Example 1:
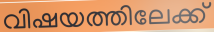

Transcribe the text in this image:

വിഷയത്തിലേക്ക്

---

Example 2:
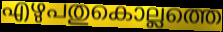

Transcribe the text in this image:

എഴുപതുകൊല്ലത്തെ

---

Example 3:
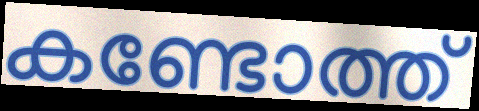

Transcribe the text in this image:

കണ്ടോത്ത്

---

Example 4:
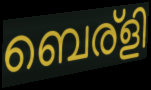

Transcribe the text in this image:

ബെര്ളി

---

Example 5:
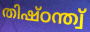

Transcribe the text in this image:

തിഷ്ഠന്ത്വ്